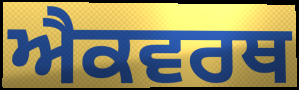
ਐਕਵਰਥ